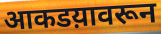
आकडय़ावरून